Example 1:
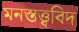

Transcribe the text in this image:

মনস্তত্ত্ববিদ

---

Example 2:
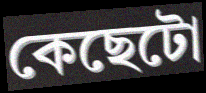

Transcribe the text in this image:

কেছেটো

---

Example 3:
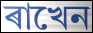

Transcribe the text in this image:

ৰাখেন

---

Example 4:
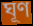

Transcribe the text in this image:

ঘূণ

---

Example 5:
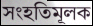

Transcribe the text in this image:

সংহতিমূলক